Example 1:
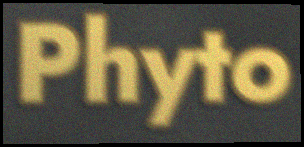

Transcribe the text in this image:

Phyto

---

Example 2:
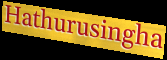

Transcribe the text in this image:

Hathurusingha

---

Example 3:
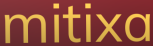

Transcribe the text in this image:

mitixa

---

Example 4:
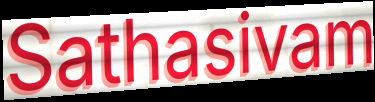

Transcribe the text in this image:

Sathasivam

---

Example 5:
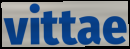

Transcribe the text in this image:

vittae